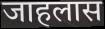
जाहलास